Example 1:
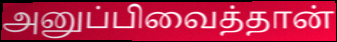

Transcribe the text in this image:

அனுப்பிவைத்தான்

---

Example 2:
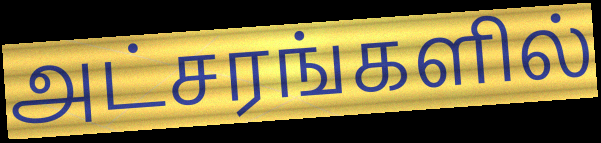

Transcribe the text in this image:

அட்சரங்களில்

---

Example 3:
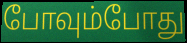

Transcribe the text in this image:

போவும்போது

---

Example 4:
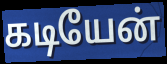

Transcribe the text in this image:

கடியேன்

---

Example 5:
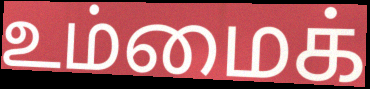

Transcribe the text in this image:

உம்மைக்